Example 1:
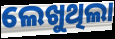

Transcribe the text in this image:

ଲେଖୁଥିଲା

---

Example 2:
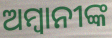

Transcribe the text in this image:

ଅମ୍ବାନୀଙ୍କ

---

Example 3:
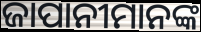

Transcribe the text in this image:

ଜାପାନୀମାନଙ୍କ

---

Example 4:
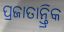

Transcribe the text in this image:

ପ୍ରଜାତାନ୍ତ୍ରିକ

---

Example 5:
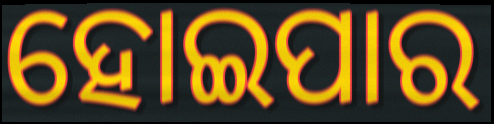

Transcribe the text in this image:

ହୋଇପାର